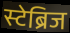
स्टेब्रिज